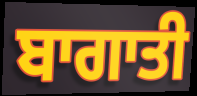
ਬਾਗਾਤੀ